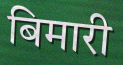
बिमारी